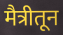
मैत्रीतून